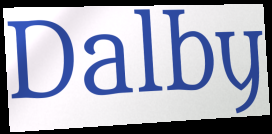
Dalby